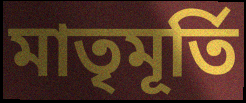
মাতৃমূর্তি